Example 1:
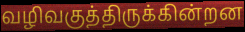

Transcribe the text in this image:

வழிவகுத்திருக்கின்றன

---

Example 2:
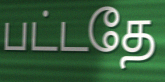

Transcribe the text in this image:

பட்டதே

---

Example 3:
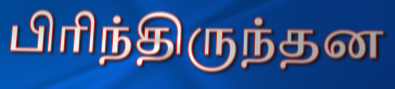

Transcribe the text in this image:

பிரிந்திருந்தன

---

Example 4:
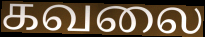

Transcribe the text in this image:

கவலை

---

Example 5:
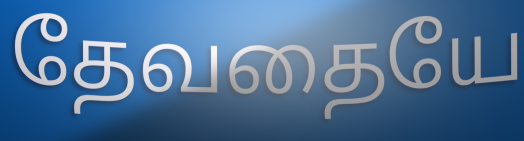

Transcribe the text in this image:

தேவதையே